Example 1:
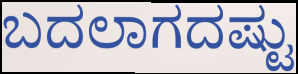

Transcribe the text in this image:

ಬದಲಾಗದಷ್ಟು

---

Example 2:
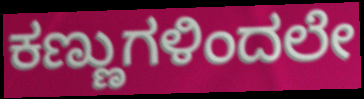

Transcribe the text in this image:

ಕಣ್ಣುಗಳಿಂದಲೇ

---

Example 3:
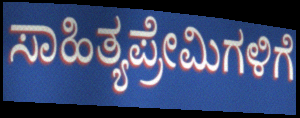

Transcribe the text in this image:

ಸಾಹಿತ್ಯಪ್ರೇಮಿಗಳಿಗೆ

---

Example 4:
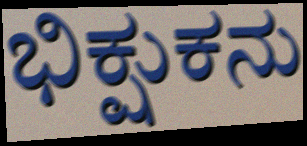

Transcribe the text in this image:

ಭಿಕ್ಷುಕನು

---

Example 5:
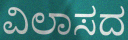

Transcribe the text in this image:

ವಿಲಾಸದ